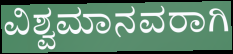
ವಿಶ್ವಮಾನವರಾಗಿ